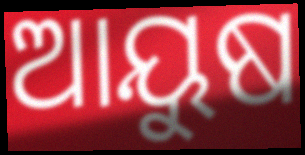
ଆୟୁଷ